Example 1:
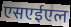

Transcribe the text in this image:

एसएईएल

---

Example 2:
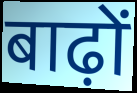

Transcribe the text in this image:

बाढ़ों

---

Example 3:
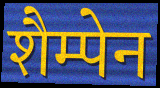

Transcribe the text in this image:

शैम्पेन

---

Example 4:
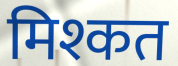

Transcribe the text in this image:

मिश्कत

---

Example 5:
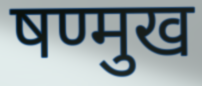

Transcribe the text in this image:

षण्मुख